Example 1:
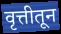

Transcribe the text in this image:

वृत्तीतून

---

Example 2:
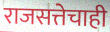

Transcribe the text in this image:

राजसत्तेचाही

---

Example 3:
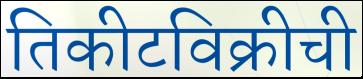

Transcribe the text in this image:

तिकीटविक्रीची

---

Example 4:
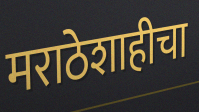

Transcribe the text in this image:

मराठेशाहीचा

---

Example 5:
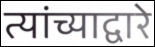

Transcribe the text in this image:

त्यांच्याद्वारे